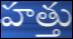
హత్తు